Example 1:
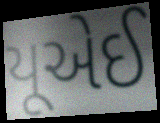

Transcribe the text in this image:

યૂએઈ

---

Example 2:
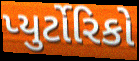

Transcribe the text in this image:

પ્યુર્ટોરિકો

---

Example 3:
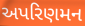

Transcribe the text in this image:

અપરિણમન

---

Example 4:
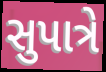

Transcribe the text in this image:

સુપાત્રે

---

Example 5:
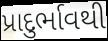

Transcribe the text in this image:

પ્રાદુર્ભાવથી